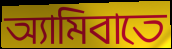
অ্যামিবাতে